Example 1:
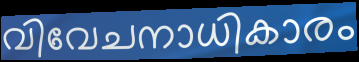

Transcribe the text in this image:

വിവേചനാധികാരം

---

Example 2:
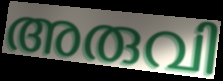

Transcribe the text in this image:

അരുവി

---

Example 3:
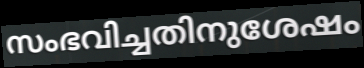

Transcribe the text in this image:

സംഭവിച്ചതിനുശേഷം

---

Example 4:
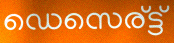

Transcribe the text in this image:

ഡെസെര്ട്ട്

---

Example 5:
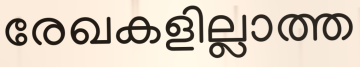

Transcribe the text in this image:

രേഖകളില്ലാത്ത